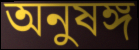
অনুষঙ্গ